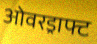
ओवरड्राफ्ट